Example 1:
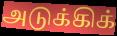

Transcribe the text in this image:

அடுக்கிக்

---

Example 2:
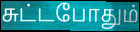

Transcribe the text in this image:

சுட்டபோதும்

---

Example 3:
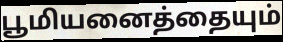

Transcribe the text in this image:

பூமியனைத்தையும்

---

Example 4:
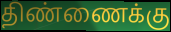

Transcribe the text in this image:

திண்ணைக்கு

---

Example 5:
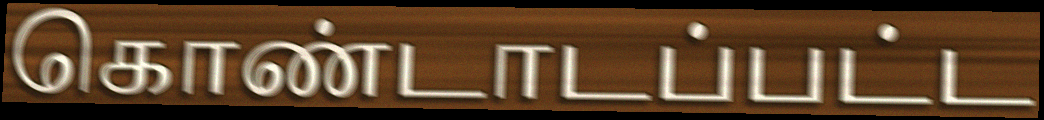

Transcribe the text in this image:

கொண்டாடப்பட்ட